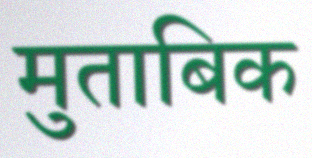
मुताबिक